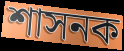
শাসনক